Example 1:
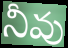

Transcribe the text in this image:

నీవు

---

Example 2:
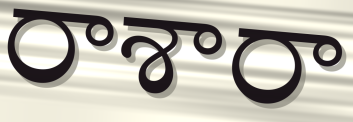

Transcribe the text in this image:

రాశారా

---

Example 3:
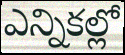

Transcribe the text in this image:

ఎన్నికల్లో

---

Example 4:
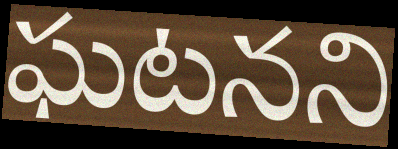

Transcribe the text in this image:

ఘటనని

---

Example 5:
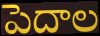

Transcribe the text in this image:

పెదాల